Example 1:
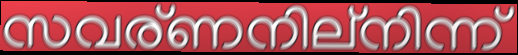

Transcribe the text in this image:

സവര്ണനില്നിന്ന്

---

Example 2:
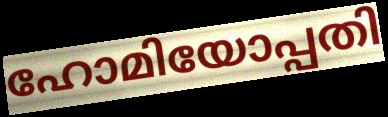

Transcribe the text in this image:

ഹോമിയോപ്പതി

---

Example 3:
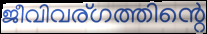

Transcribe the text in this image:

ജീവിവര്ഗത്തിന്റെ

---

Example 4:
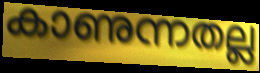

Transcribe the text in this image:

കാണുന്നതല്ല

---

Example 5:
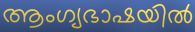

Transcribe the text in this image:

ആംഗ്യഭാഷയിൽ